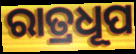
ରାତ୍ରଧୂପ